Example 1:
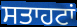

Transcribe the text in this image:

ਸਤਾਹਟਾਂ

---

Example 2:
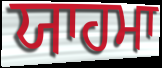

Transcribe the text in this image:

ਯਾਹਮਾ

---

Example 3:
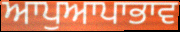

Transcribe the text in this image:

ਆਪੁਆਪਾਭਾਵ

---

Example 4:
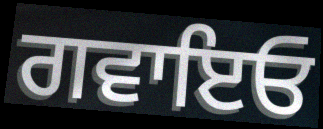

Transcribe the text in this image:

ਗਵਾਇਓ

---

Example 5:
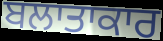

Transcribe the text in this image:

ਬਲਾਤਾਕਾਰ